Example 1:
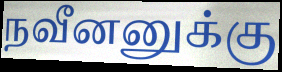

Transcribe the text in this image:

நவீனனுக்கு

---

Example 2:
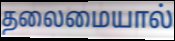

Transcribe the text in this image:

தலைமையால்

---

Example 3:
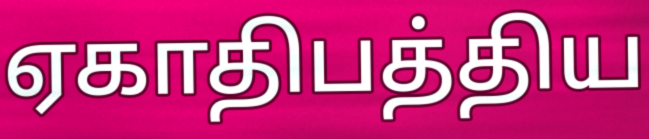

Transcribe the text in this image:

ஏகாதிபத்திய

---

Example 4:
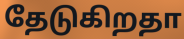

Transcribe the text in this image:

தேடுகிறதா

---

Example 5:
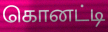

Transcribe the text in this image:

கொனட்டி